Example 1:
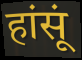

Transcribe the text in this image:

हांसूं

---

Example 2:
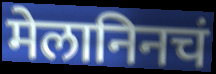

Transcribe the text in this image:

मेलानिनचं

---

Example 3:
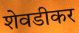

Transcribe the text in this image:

शेवडीकर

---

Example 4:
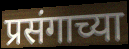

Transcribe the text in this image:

प्रसंगाच्या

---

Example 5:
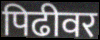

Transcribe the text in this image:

पिढीवर